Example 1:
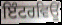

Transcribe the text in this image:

ਇੰਟਰਵਿਊਂ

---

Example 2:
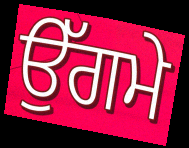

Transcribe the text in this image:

ਉੱਗਮੇ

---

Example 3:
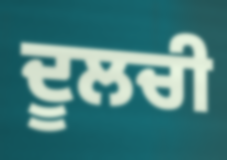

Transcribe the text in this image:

ਦੂਲਚੀ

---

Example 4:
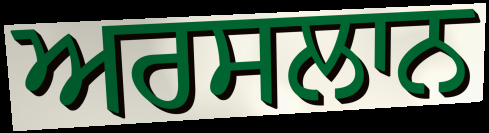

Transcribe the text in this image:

ਅਰਸਲਾਨ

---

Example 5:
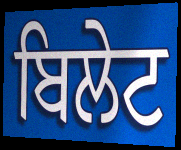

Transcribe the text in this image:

ਬਿਲੇਟ